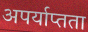
अपर्याप्तता